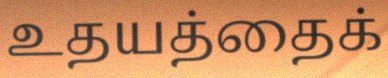
உதயத்தைக்